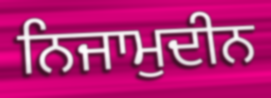
ਨਿਜਾਮੁਦੀਨ